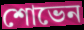
শোভেন